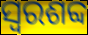
ସ୍ୱରଶବ୍ଦ